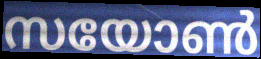
സയോൺ